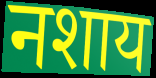
नशाय